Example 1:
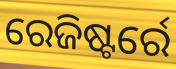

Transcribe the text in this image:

ରେଜିଷ୍ଟର୍ରେ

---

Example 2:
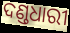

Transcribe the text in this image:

ଦଣ୍ଡଧାରୀ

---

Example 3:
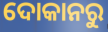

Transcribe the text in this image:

ଦୋକାନରୁ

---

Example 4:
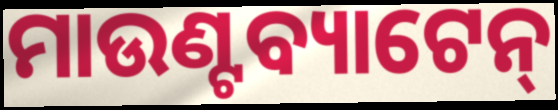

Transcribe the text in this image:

ମାଉଣ୍ଟବ୍ୟାଟେନ୍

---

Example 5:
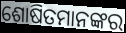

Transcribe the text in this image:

ଶୋଷିତମାନଙ୍କର